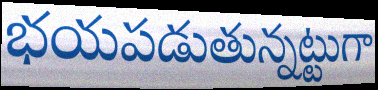
భయపడుతున్నట్టుగా